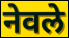
नेवले